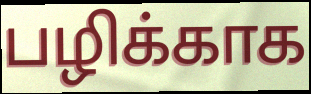
பழிக்காக